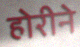
होरीने